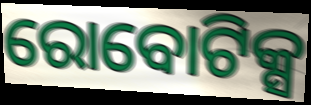
ରୋବୋଟିକ୍ସ